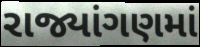
રાજ્યાંગણમાં